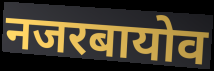
नजरबायोव